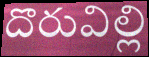
దొరువిల్లి